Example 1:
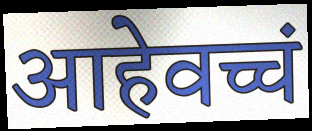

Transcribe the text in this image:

आहेवच्चं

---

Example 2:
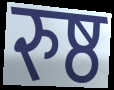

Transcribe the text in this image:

रुष्ठ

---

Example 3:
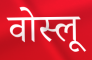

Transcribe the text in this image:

वोस्लू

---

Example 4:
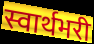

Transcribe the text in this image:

स्वार्थभरी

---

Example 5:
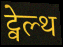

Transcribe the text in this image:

ट्वेल्थ